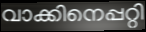
വാക്കിനെപ്പറ്റി